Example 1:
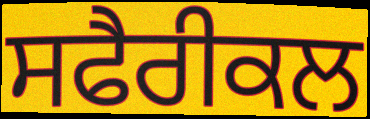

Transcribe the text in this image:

ਸਫੈਰੀਕਲ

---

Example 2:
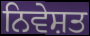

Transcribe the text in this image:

ਨਿਵੇਸ਼ਤ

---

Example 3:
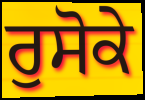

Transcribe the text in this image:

ਰੁਸੋਕੇ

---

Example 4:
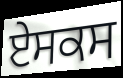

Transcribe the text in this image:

ਏਸਕਸ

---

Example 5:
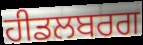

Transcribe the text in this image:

ਹੀਡਲਬਰਗ